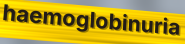
haemoglobinuria